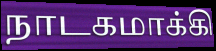
நாடகமாக்கி